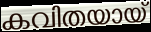
കവിതയായ്